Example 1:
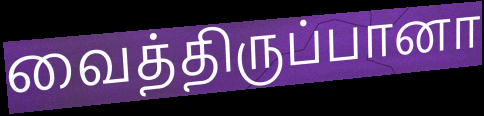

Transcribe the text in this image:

வைத்திருப்பானா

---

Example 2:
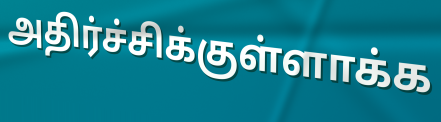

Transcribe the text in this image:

அதிர்ச்சிக்குள்ளாக்க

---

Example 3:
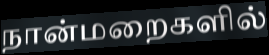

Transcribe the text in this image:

நான்மறைகளில்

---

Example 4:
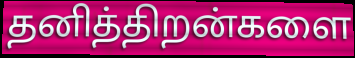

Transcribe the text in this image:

தனித்திறன்களை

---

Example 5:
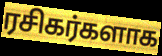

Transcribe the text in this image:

ரசிகர்களாக